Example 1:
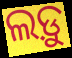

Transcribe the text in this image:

ଲଡ଼ୁ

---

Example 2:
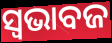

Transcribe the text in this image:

ସ୍ୱଭାବଜ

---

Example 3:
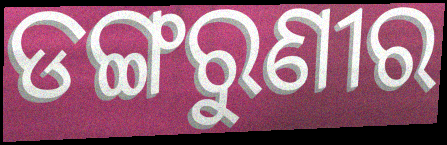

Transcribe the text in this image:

ଡଙ୍ଗରୁଣୀର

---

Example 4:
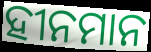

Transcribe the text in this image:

ହୀନମାନ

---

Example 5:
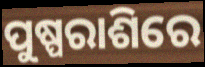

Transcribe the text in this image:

ପୁଷ୍ପରାଶିରେ